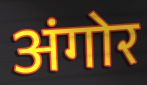
अंगोर